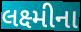
લક્ષ્મીના